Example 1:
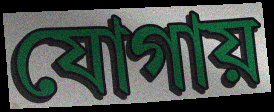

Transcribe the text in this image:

যোগায়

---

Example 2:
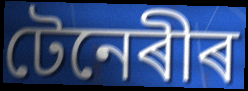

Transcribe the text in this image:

টেনেৰীৰ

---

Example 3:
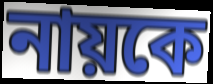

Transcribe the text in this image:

নায়কে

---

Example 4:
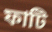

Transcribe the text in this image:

ফাটি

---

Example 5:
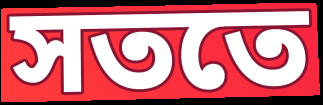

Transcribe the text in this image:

সততে